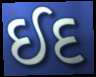
ઈદ